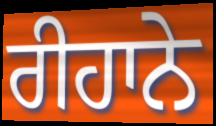
ਰੀਹਾਨੇ